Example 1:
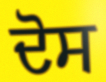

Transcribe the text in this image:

ਦੋਸ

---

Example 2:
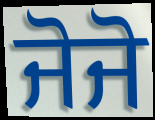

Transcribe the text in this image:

ਜੋਜੋ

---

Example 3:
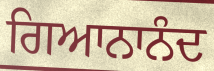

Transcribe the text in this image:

ਗਿਆਨਾਨੰਦ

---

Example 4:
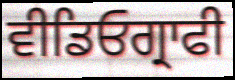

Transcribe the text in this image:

ਵੀਡਿਓਗ੍ਰਾਫੀ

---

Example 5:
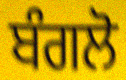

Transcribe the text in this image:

ਬੰਗਲੋ